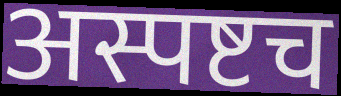
अस्पष्टच